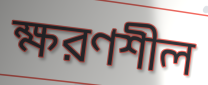
ক্ষরণশীল